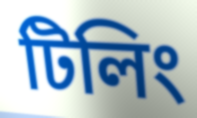
টিলিং